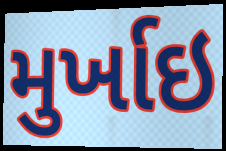
મુર્ખાઇ